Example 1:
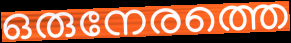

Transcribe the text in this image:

ഒരുനേരത്തെ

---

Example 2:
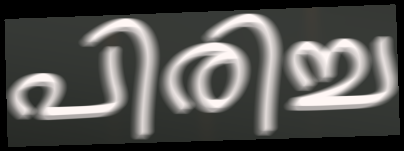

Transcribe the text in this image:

പിരിച്ച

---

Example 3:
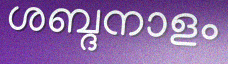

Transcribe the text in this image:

ശബ്ദനാളം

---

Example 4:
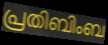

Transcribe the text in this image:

പ്രതിബിംബ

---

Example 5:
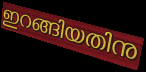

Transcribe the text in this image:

ഇറങ്ങിയതിനു